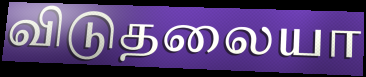
விடுதலையா